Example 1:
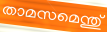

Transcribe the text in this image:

താമസമെന്തു്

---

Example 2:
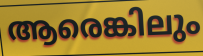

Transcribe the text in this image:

ആരെങ്കിലും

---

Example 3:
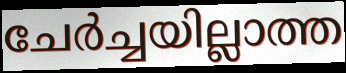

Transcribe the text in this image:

ചേർച്ചയില്ലാത്ത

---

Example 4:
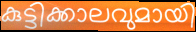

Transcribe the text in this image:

കുട്ടിക്കാലവുമായി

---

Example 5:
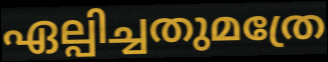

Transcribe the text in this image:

ഏല്പിച്ചതുമത്രേ